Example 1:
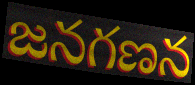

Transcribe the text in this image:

జనగణన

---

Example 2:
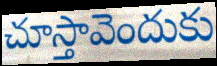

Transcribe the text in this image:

చూస్తావెందుకు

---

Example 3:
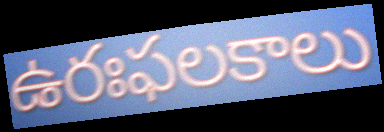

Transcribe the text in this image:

ఉరఃఫలకాలు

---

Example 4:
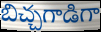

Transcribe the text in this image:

బిచ్చగాడిగా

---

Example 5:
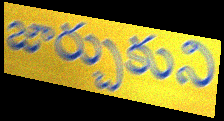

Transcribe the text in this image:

జార్చుకుని